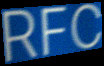
RFC